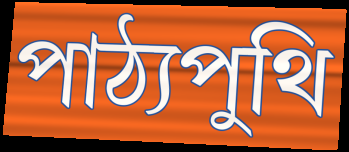
পাঠ্যপুথি